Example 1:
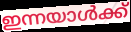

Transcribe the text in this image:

ഇന്നയാൾക്ക്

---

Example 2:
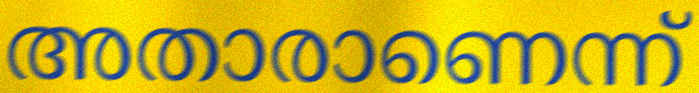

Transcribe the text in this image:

അതാരാണെന്ന്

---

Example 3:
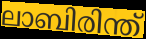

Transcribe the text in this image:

ലാബിരിന്ത്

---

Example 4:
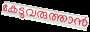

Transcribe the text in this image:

കേടുവരുത്താൻ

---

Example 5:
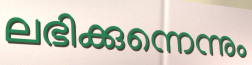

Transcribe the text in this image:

ലഭിക്കുന്നെന്നും